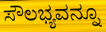
ಸೌಲಭ್ಯವನ್ನೂ